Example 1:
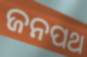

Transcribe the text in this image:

ଜନପଥ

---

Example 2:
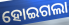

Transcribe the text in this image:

ହୋଇଗଲା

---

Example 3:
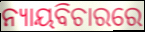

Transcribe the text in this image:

ନ୍ୟାୟବିଚାରରେ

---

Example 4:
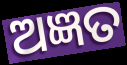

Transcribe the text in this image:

ଅଜ୍ଞତ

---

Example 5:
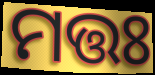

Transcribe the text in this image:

ମତ୍ତଃ